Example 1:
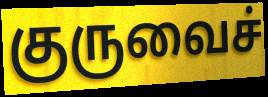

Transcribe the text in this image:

குருவைச்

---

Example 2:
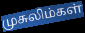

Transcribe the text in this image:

முசுலிம்கள்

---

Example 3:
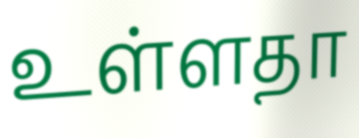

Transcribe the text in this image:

உள்ளதா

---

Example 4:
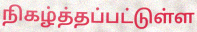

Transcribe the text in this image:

நிகழ்த்தப்பட்டுள்ள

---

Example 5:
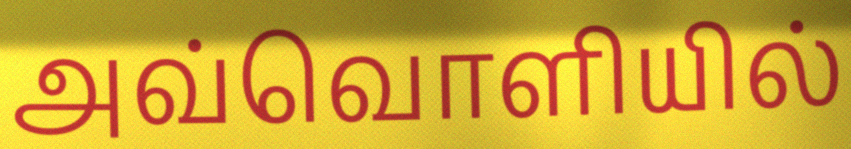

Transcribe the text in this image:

அவ்வொளியில்